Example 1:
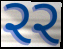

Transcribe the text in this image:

રર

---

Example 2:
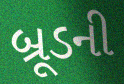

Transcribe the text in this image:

બ્રૂડની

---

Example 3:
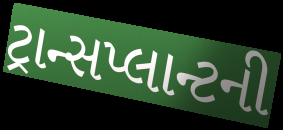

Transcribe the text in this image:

ટ્રાન્સપ્લાન્ટની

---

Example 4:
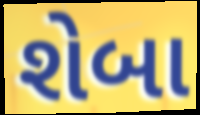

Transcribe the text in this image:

શેબા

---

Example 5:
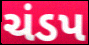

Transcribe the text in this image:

ચંડપ